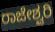
ರಾಜೇಶ್ವರಿ